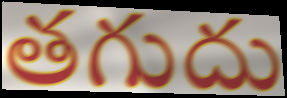
తగుదు